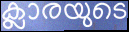
ക്ലാരയുടെ